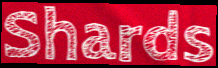
Shards